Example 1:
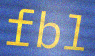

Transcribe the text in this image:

fbl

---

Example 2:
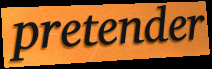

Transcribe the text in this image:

pretender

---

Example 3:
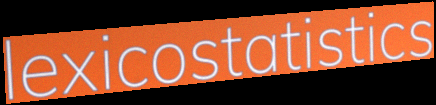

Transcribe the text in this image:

lexicostatistics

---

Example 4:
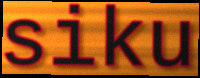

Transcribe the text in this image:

siku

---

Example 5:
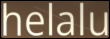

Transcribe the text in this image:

helalu